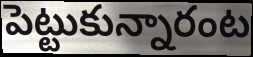
పెట్టుకున్నారంట